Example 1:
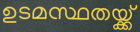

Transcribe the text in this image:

ഉടമസ്ഥതയ്ക്ക്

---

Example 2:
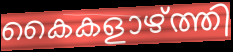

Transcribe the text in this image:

കൈകളാഴ്ത്തി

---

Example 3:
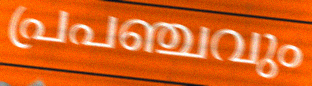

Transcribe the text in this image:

പ്രപഞ്ചവും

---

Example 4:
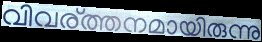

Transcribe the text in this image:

വിവര്ത്തനമായിരുന്നു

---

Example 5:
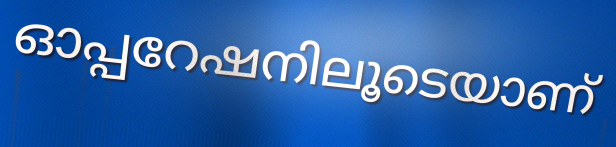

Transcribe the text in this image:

ഓപ്പറേഷനിലൂടെയാണ്